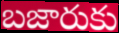
బజారుకు